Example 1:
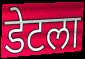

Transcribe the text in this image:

डेटला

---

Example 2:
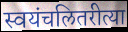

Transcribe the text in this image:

स्वयंचलितरीत्या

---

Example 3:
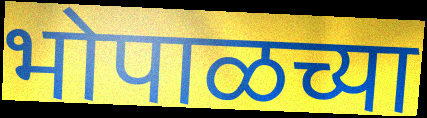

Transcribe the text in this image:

भोपाळच्या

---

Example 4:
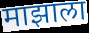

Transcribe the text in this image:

माझाला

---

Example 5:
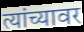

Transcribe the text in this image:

त्यांच्यावर